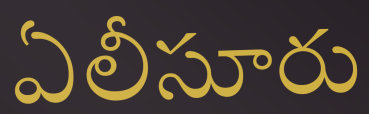
ఏలీసూరు